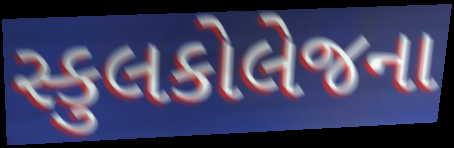
સ્કુલકોલેજના